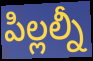
పిల్లల్నీ